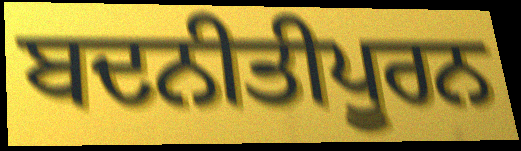
ਬਦਨੀਤੀਪੂਰਨ